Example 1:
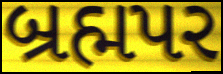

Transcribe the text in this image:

બ્રહ્મપર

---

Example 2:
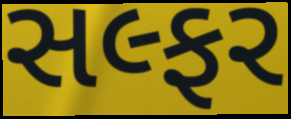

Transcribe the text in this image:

સલ્ફર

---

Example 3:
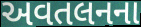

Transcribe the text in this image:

અવતલનના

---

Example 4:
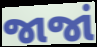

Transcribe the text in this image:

જાજાં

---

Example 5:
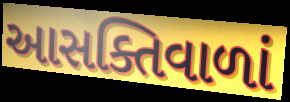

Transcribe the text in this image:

આસક્તિવાળાં